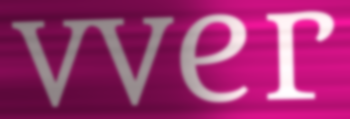
vver